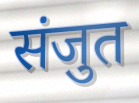
संजुत